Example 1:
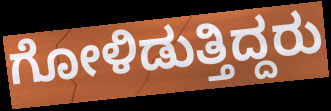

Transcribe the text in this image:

ಗೋಳಿಡುತ್ತಿದ್ದರು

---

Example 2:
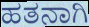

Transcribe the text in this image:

ಹತನಾಗಿ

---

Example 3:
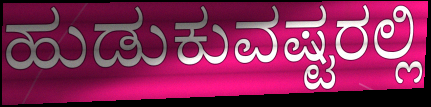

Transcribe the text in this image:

ಹುಡುಕುವಷ್ಟರಲ್ಲಿ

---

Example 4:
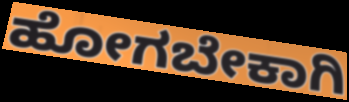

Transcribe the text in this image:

ಹೋಗಬೇಕಾಗಿ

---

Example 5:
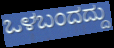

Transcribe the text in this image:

ಒಳಬಂದದ್ದು